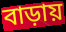
বাড়ায়